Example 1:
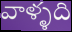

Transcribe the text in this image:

వాళ్ళది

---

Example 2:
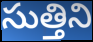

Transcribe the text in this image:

సుత్తిని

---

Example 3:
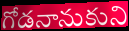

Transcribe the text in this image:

గోడనానుకుని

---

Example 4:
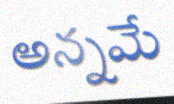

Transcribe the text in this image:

అన్నమే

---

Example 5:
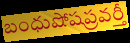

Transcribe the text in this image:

బంధుషోషప్రవర్తీ